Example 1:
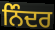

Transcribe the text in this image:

ਨਿੰਦਰ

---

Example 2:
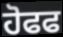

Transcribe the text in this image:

ਹੋਫਫ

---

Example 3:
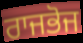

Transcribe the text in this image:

ਰਾਜਭੋਜ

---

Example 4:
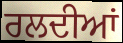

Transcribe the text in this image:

ਰਲਦੀਆਂ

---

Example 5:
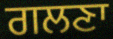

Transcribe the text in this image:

ਗਲਣਾ